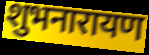
शुभनारायण